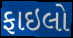
ફાઇલો